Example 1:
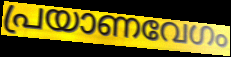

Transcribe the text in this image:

പ്രയാണവേഗം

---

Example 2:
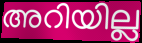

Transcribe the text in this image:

അറിയില്ല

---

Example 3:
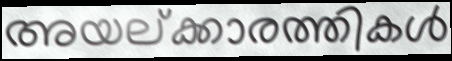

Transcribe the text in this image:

അയല്ക്കാരത്തികൾ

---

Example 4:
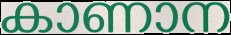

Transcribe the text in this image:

കാണാന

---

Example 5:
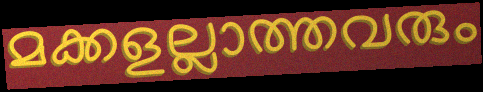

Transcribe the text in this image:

മക്കളല്ലാത്തവരും